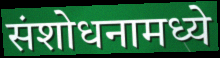
संशोधनामध्ये